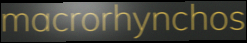
macrorhynchos